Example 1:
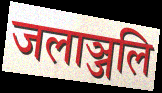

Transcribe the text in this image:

जलाञ्जलि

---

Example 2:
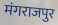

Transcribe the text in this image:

मंगराजपुर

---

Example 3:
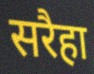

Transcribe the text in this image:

सरैहा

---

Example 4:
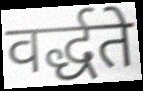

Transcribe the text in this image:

वर्द्धते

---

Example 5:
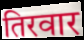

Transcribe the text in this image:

तिरवार